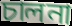
চালনা